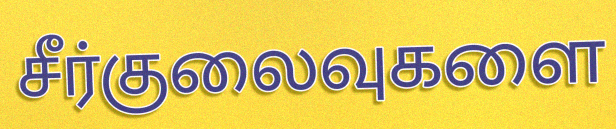
சீர்குலைவுகளை